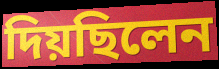
দিয়ছিলেন